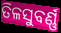
ତିଳସୁବର୍ଣ୍ଣ